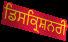
ਡਿਸਕ੍ਰਿਸ਼ਨਰੀ